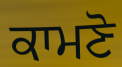
ਕਾਮਣੋ